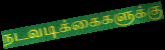
நடவடிக்கைகளுக்கு